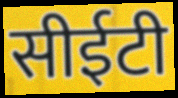
सीईटी